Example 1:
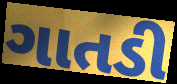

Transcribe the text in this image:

ગાતડી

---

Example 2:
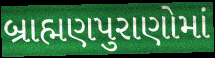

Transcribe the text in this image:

બ્રાહ્મણપુરાણોમાં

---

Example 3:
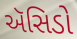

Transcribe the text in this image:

ઍસિડો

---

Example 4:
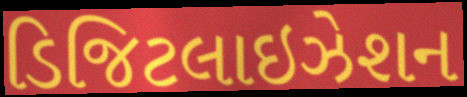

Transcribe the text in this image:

ડિજિટલાઇઝેશન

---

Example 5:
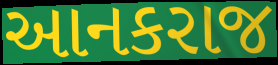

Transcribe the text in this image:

આનકરાજ